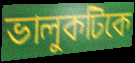
ভালুকটিকে